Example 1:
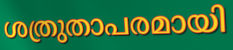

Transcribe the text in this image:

ശത്രുതാപരമായി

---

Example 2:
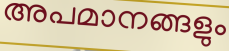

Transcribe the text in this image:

അപമാനങ്ങളും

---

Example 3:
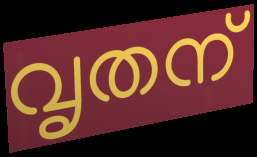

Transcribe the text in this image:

വൃതന്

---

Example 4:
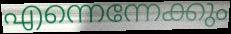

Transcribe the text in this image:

എന്നെന്നേക്കും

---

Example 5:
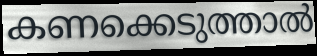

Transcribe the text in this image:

കണക്കെടുത്താൽ